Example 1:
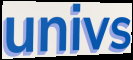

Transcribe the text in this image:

univs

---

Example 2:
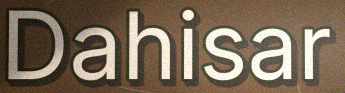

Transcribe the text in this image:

Dahisar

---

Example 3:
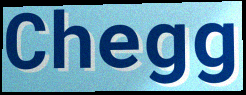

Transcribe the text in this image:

Chegg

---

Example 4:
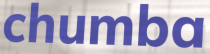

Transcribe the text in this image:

chumba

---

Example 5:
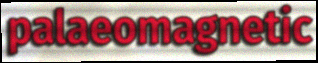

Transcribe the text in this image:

palaeomagnetic